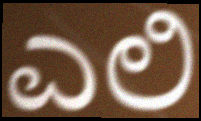
ಎಲಿ